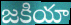
జకియా